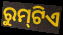
ରୁମ୍‌ଟିଏ